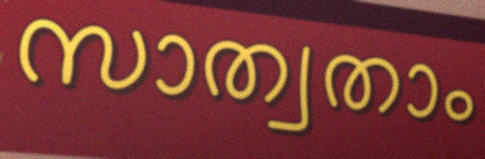
സാത്വതാം